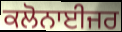
ਕਲੋਨਾਈਜਰ